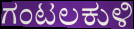
ಗಂಟಲಕುಳಿ